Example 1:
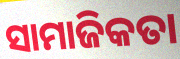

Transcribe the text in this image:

ସାମାଜିକତା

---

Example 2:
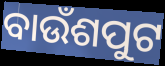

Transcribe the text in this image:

ବାଉଁଶପୁଟ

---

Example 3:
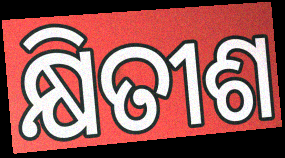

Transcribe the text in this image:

କ୍ଷିତୀଶ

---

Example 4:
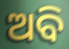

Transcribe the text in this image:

ଅବି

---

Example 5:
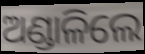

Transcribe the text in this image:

ଅଣ୍ଡାଳିଲେ